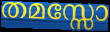
തമസ്സോ